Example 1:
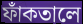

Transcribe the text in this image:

ফাঁকতালে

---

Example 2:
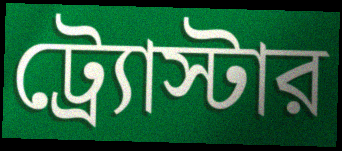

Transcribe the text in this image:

ট্র্যোস্টার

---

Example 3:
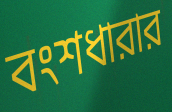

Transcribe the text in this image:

বংশধারার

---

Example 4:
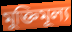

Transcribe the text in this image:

মুক্তিমূল্য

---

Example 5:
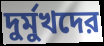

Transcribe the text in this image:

দুর্মুখদের